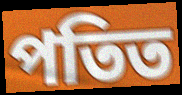
পতিত